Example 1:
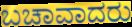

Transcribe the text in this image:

ಬಚಾವಾದರು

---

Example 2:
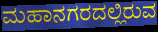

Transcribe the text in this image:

ಮಹಾನಗರದಲ್ಲಿರುವ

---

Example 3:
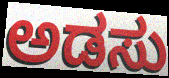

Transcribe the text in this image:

ಅಡಸು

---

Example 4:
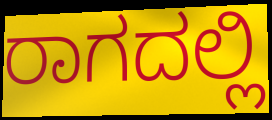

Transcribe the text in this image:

ರಾಗದಲ್ಲಿ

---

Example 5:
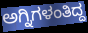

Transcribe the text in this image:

ಅಗ್ನಿಗಳಂತಿದ್ದ